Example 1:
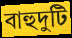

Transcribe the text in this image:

বাহুদুটি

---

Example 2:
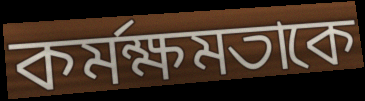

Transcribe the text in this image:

কর্মক্ষমতাকে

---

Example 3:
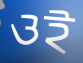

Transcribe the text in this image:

ওই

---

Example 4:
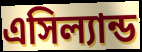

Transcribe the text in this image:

এসিল্যান্ড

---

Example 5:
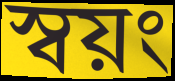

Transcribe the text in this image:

স্বয়ং